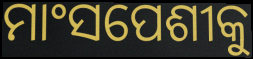
ମାଂସପେଶୀକୁ